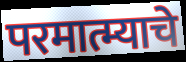
परमात्म्याचे